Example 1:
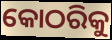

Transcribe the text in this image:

କୋଠରିକୁ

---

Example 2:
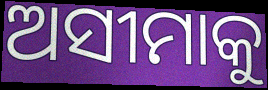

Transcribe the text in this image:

ଅସୀମାକୁ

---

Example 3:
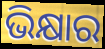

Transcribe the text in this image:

ଭିକ୍ଷାର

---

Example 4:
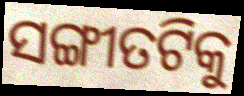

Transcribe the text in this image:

ସଙ୍ଗୀତଟିକୁ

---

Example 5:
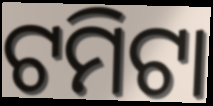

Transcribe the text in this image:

ଟମିଟା